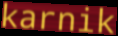
karnik